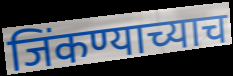
जिंकण्याच्याच